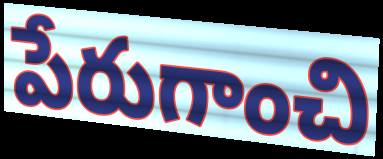
పేరుగాంచి